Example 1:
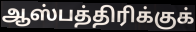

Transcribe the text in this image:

ஆஸ்பத்திரிக்குக்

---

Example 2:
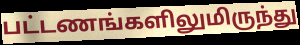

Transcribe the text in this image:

பட்டணங்களிலுமிருந்து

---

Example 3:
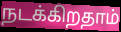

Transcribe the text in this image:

நடக்கிறதாம்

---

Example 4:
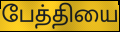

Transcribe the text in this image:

பேத்தியை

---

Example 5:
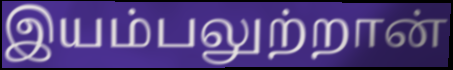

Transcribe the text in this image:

இயம்பலுற்றான்